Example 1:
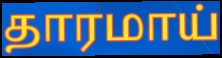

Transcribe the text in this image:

தாரமாய்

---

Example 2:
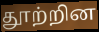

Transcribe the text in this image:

தூற்றின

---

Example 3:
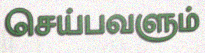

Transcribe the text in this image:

செய்பவளும்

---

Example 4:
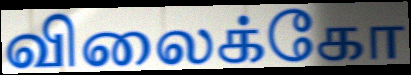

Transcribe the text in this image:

விலைக்கோ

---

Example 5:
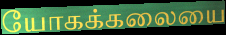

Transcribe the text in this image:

யோகக்கலையை